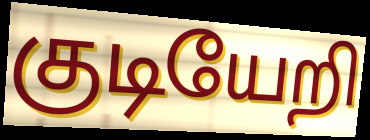
குடியேறி